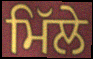
ਮਿੱਲੇ